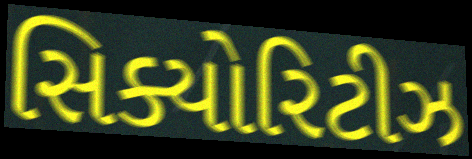
સિક્યોરિટીઝ